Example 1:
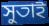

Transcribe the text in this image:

সুতাই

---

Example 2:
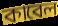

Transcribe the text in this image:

কাবেল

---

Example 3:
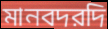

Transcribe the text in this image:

মানবদরদি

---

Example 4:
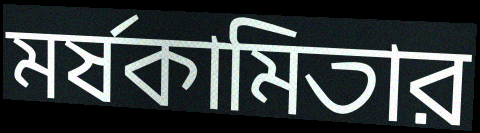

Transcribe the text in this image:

মর্ষকামিতার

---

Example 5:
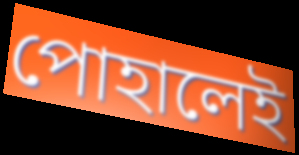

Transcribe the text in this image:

পোহালেই